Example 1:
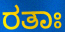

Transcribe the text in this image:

ರತಾಃ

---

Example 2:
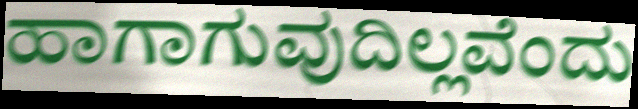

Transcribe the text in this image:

ಹಾಗಾಗುವುದಿಲ್ಲವೆಂದು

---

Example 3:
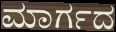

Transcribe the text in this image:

ಮಾರ್ಗದ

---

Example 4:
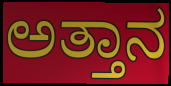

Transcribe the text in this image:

ಅತ್ತಾನ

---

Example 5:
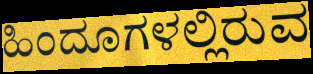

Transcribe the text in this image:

ಹಿಂದೂಗಳಲ್ಲಿರುವ